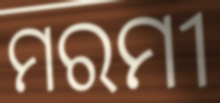
ମରମୀ